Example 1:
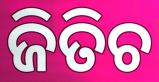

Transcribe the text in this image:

ଜିତିଚ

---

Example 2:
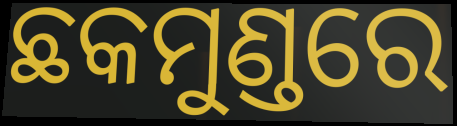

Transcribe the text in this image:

ଛକମୁଣ୍ଡରେ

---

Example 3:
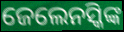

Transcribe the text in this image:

ଜେଲେନସ୍କିଙ୍କ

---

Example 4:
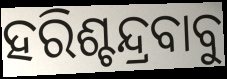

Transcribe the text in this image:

ହରିଶ୍ଚନ୍ଦ୍ରବାବୁ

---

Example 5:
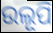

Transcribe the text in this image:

ଉଲୂପି